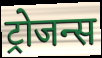
ट्रोजन्स